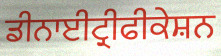
ਡੀਨਾਈਟ੍ਰੀਫੀਕੇਸ਼ਨ